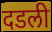
दडली